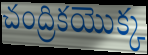
చంద్రికయొక్క